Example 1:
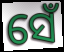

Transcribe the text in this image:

ସେଁ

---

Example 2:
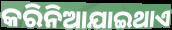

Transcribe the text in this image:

କରିନିଆଯାଇଥାଏ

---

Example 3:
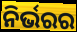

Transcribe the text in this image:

ନିର୍ଭରର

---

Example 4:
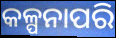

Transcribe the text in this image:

କଳ୍ପନାପରି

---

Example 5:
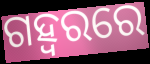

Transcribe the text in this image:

ଗହ୍ୱରରେ